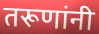
तरूणांनी